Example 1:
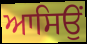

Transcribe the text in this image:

ਆਸਿਉਂ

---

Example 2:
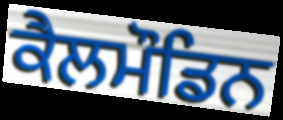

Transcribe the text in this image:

ਕੈਲਮੌਡਿਨ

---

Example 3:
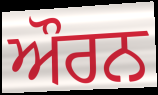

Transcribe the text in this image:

ਔਰਨ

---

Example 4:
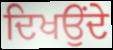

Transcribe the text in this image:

ਦਿਖਉਂਦੇ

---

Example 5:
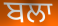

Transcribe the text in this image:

ਬਲਾ